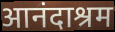
आनंदाश्रम